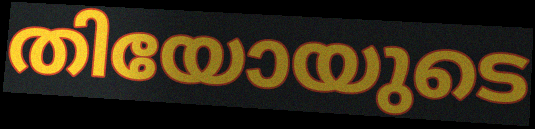
തിയോയുടെ